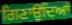
ਗਿਣਾਉਂਦਿਆਂ